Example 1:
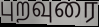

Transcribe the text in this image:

புறவுரை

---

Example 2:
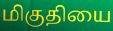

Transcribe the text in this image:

மிகுதியை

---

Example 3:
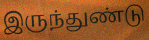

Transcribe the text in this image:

இருந்துண்டு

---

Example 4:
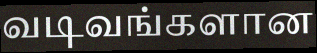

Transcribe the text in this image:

வடிவங்களான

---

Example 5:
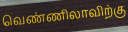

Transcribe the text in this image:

வெண்ணிலாவிற்கு